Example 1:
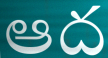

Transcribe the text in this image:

ఆద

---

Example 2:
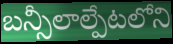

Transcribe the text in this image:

బన్సీలాల్పేటలోని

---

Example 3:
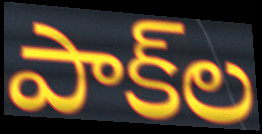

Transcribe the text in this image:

పాక్‌ల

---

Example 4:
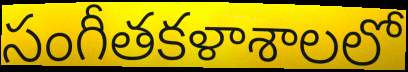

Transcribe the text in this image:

సంగీతకళాశాలలో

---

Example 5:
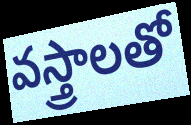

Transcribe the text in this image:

వస్త్రాలతో